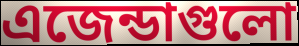
এজেন্ডাগুলো